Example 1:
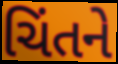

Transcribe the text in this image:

ચિંતને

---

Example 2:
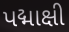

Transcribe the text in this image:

પદ્માક્ષી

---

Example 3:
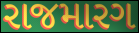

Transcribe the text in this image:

રાજમારગ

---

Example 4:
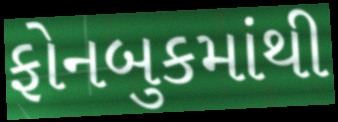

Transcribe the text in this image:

ફોનબુકમાંથી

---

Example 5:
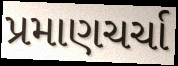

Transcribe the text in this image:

પ્રમાણચર્ચા